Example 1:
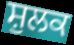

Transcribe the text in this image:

ਸ਼ੁਲਕ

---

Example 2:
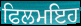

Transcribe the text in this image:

ਫਿਲਮਇਹ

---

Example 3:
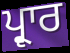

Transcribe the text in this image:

ਪ੍ਰ੍ਵਾਰ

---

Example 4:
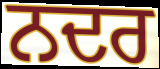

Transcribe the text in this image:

ਨਦਰ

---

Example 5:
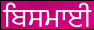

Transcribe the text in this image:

ਬਿਸਮਾਈ